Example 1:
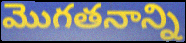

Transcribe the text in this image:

మొగతనాన్ని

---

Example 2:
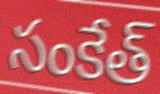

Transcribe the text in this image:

సంకేత్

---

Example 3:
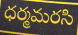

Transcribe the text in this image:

ధర్మమరసి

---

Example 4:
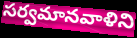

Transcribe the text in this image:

సర్వమానవాళిని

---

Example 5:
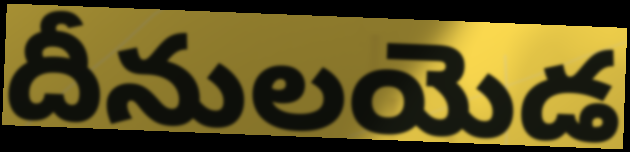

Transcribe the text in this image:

దీనులయెడ